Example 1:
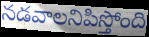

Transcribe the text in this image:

నడవాలనిపిస్తోంది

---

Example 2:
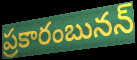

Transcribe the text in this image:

ప్రకారంబునన్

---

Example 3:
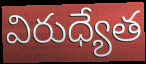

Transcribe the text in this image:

విరుధ్యేత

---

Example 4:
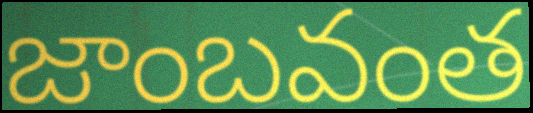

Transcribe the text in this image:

జాంబవంత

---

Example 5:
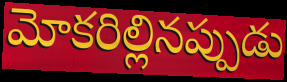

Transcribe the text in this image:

మోకరిల్లినప్పుడు